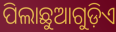
ପିଲାଛୁଆଗୁଡ଼ିଏ